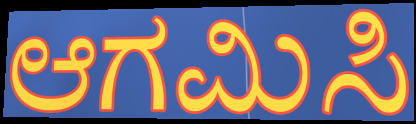
ಆಗಮಿಸಿ